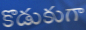
కొడుకుగా